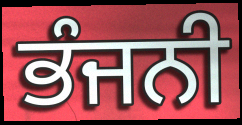
ਭੰਜਨੀ